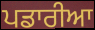
ਪਡਾਰੀਆ